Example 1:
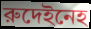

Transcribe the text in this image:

রুদেইনেহ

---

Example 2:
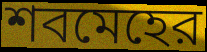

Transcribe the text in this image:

শবমেহের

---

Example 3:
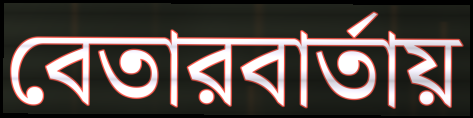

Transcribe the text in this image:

বেতারবার্তায়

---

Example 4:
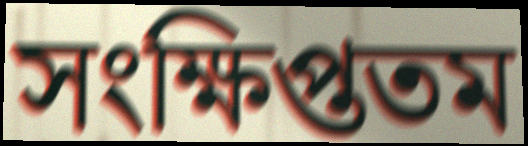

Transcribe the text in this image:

সংক্ষিপ্ততম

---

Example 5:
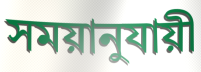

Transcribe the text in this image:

সময়ানুযায়ী